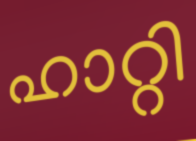
ഹാറ്റി